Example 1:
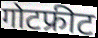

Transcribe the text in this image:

गोटफ्रीट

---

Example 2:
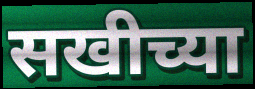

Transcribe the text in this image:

सखीच्या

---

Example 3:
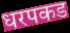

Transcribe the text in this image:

धरपकड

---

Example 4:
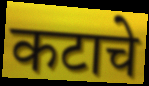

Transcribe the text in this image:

कटाचे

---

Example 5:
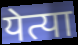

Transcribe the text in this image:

येत्या